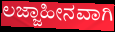
ಲಜ್ಜಾಹೀನವಾಗಿ